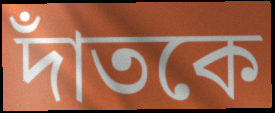
দাঁতকে